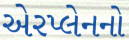
એરપ્લેનનો